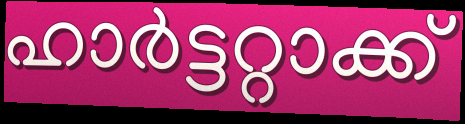
ഹാർട്ടറ്റാക്ക്